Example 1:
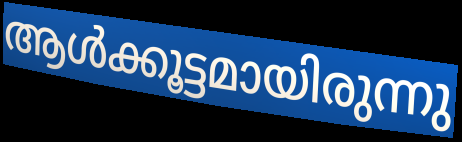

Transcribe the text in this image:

ആൾക്കൂട്ടമായിരുന്നു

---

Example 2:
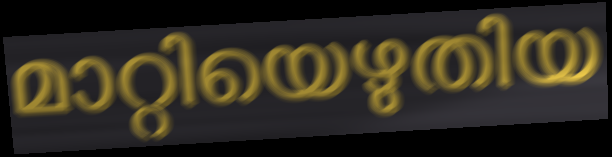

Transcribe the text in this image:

മാറ്റിയെഴുതിയ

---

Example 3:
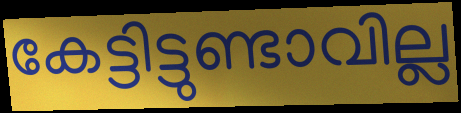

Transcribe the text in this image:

കേട്ടിട്ടുണ്ടാവില്ല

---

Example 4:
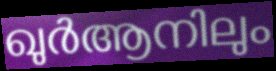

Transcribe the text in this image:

ഖുർആനിലും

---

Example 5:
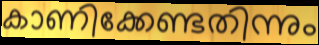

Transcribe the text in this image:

കാണിക്കേണ്ടതിന്നും